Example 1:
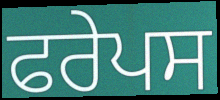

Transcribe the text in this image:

ਫਰੇਪਸ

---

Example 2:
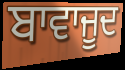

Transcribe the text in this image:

ਬਾਵਾਜੂਦ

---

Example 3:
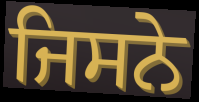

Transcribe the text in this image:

ਜਿਸਨੇ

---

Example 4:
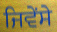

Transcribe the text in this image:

ਜਿਵੇਂਸੇ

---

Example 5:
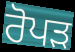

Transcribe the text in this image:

ਰੋਪੜ